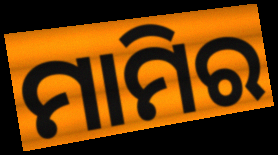
ମାମିର